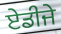
ਏਡੀਜੇ